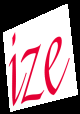
ize